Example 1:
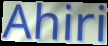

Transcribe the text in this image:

Ahiri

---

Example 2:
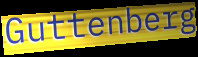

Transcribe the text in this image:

Guttenberg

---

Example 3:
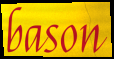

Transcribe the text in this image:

bason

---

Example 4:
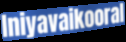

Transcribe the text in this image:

Iniyavaikooral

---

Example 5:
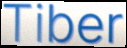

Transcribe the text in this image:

Tiber